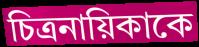
চিত্রনায়িকাকে